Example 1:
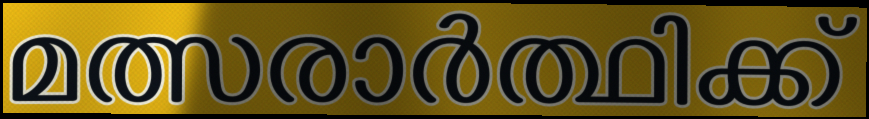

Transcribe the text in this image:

മത്സരാർത്ഥിക്ക്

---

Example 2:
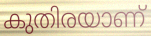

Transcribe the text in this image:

കുതിരയാണ്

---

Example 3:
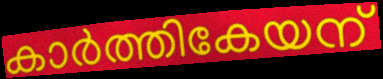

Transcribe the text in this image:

കാർത്തികേയന്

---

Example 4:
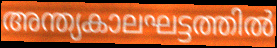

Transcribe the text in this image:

അന്ത്യകാലഘട്ടത്തിൽ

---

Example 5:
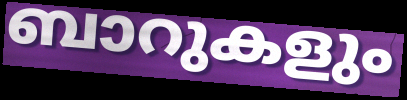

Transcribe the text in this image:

ബാറുകളും